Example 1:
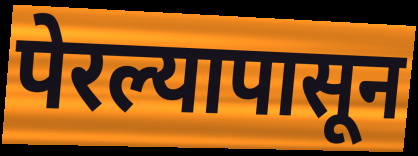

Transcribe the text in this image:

पेरल्यापासून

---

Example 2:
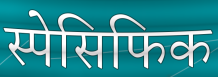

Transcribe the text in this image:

स्पेसिफिक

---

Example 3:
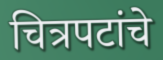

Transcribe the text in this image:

चित्रपटांचे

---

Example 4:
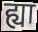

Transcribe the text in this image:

ह्या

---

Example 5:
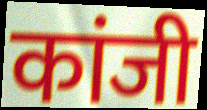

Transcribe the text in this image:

कांजी